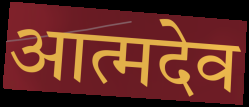
आत्मदेव